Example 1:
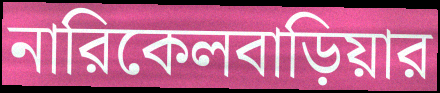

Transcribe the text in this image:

নারিকেলবাড়িয়ার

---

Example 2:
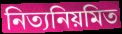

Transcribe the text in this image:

নিত্যনিয়মিত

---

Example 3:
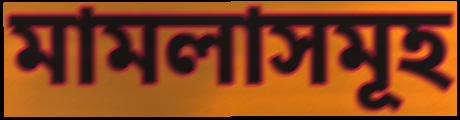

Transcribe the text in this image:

মামলাসমূহ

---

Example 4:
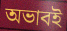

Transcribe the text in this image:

অভাবই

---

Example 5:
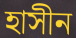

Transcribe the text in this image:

হাসীন